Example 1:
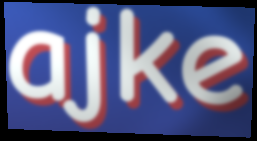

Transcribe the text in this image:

ajke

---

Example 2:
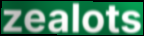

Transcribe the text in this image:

zealots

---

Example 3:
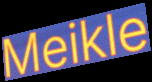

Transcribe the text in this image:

Meikle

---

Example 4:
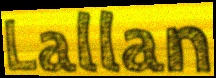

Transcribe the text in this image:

Lallan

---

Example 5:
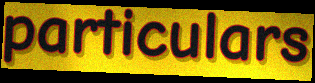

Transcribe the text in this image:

particulars